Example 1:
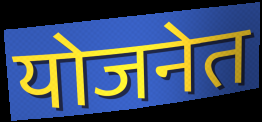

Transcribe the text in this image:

योजनेत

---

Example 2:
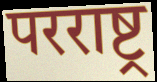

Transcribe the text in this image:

परराष्ट्र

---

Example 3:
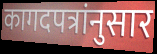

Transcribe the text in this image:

कागदपत्रांनुसार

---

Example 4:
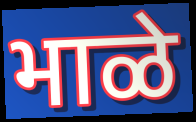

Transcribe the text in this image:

भाळे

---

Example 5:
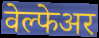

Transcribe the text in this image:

वेल्फेअर